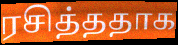
ரசித்ததாக